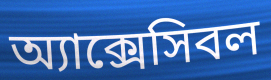
অ্যাক্সেসিবল